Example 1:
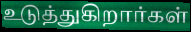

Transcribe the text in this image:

உடுத்துகிறார்கள்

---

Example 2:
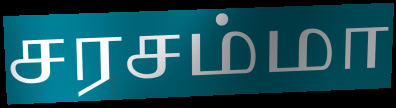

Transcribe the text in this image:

சரசம்மா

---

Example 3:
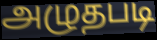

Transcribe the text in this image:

அழுதபடி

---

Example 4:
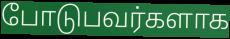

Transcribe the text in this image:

போடுபவர்களாக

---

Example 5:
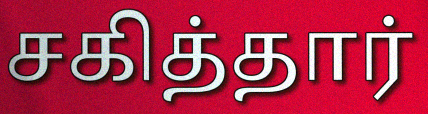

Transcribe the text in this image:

சகித்தார்